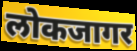
लोकजागर